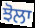
ਝੋਲਾ